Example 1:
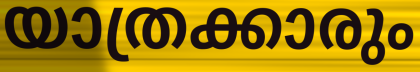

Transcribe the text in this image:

യാത്രക്കാരും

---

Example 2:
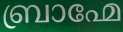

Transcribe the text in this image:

ബ്രാഹ്മേ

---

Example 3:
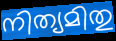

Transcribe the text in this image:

നിത്യമിതു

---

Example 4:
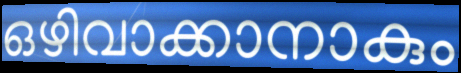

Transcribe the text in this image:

ഒഴിവാക്കാനാകും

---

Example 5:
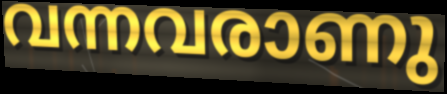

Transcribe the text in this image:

വന്നവരാണു